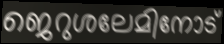
ജെറുശലേമിനോട്